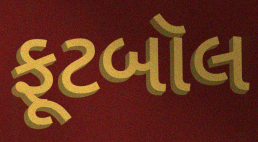
ફૂટબૉલ